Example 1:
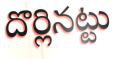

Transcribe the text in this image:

దొర్లినట్టు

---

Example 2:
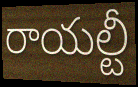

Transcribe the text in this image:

రాయల్టీ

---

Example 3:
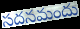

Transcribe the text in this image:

సదనమందు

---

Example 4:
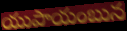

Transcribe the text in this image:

యుపాయంబున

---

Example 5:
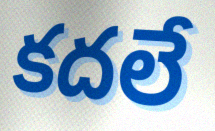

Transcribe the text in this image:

కదలే